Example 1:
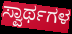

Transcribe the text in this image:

ಸ್ವಾರ್ಥಗಳ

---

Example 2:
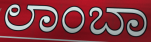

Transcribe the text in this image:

ಲಾಂಬಾ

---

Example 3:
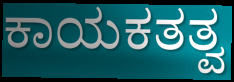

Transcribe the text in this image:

ಕಾಯಕತತ್ವ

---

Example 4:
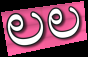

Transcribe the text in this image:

ಲಲ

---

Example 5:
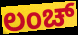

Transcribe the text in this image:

ಲಂಚ್